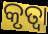
କୃତ୍ଵା